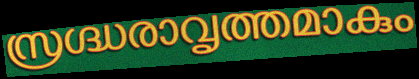
സ്രഗ്ദ്ധരാവൃത്തമാകും